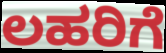
ಲಹರಿಗೆ